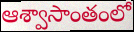
ఆశ్వాసాంతంలో